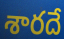
శారదే